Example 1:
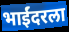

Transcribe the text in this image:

भाईंदरला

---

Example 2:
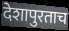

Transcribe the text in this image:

देशापुरताच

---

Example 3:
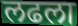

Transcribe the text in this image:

लढला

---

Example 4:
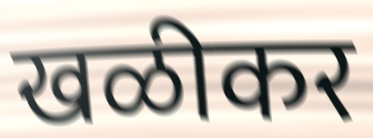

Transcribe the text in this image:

खळीकर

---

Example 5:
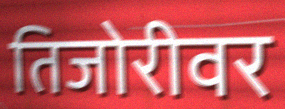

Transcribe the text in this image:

तिजोरीवर